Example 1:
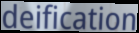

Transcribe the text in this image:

deification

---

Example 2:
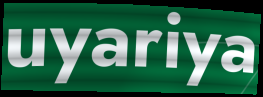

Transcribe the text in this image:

uyariya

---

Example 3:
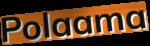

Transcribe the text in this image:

Polaama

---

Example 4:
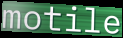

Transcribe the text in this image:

motile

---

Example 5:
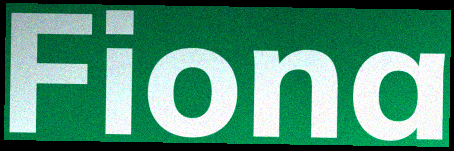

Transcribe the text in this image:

Fiona